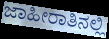
ಜಾಹೀರಾತಿನಲ್ಲಿ